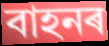
বাহনৰ